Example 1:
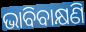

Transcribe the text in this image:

ଭାବିବାକ୍ଷଣି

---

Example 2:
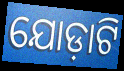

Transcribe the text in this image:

ଯୋଡ଼ାଟି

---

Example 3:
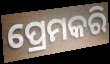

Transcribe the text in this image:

ପ୍ରେମକରି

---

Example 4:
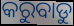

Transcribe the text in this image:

କରୁବାଡୁ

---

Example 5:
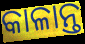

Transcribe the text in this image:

କାଳାନ୍ତ